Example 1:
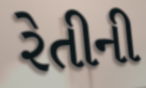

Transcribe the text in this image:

રેતીની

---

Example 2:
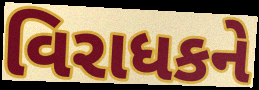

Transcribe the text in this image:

વિરાધકને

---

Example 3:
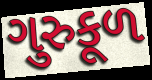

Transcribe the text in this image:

ગુરુકૂળ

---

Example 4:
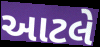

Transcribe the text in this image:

આટલે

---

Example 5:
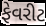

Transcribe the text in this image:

ફેવરીટ